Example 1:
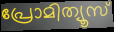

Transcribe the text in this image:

പ്രോമിത്യൂസ്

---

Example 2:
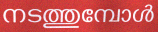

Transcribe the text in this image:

നടത്തുമ്പോൾ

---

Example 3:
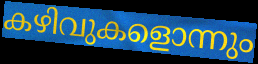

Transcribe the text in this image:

കഴിവുകളൊന്നും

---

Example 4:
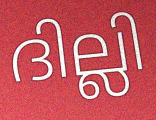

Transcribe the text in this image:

ദില്ലി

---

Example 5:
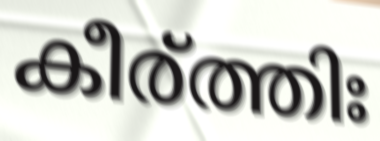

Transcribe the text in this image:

കീര്ത്തിഃ